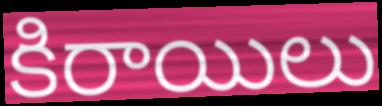
కిరాయిలు